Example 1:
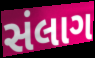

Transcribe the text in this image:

સંલાગ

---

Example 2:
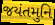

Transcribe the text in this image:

જયંતમુનિ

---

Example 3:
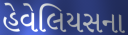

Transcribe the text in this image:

હેવેલિયસના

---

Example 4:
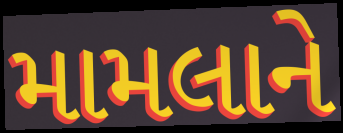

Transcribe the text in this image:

મામલાને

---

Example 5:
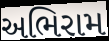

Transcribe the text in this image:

અભિરામ